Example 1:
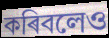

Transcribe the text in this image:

কৰিবলেও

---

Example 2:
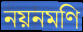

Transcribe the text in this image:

নয়নমণি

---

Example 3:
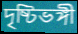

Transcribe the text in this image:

দৃষ্টিভঙ্গী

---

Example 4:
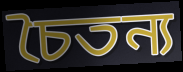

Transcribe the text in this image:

চৈতন্য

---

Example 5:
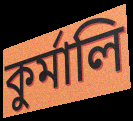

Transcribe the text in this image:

কুৰ্মালি